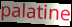
palatine